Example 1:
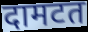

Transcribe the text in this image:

दामटत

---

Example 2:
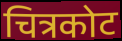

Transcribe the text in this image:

चित्रकोट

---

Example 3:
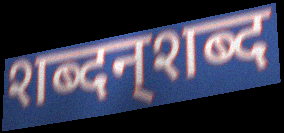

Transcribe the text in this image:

शब्दन्‌शब्द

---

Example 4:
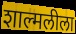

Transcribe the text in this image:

शाल्मलीला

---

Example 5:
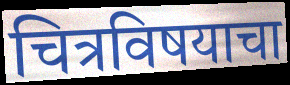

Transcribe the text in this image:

चित्रविषयाचा